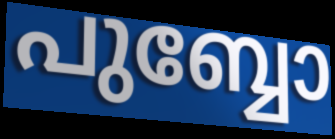
പുബ്ബോ